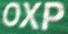
OXP